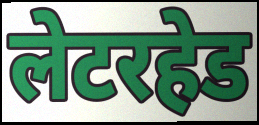
लेटरहेड